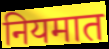
नियमात